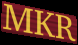
MKR